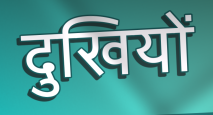
दुखियों